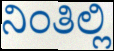
ನಿಂತಿಲ್ಲಿ